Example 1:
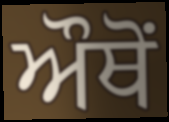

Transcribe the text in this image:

ਔਥੋਂ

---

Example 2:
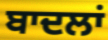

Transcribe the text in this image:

ਬਾਦਲਾਂ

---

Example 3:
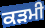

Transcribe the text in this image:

ਕੜਮੀ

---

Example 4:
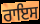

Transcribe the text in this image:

ਰਾਇਸ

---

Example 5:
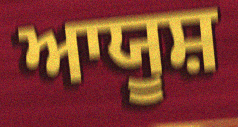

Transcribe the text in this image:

ਆਯੂਸ਼